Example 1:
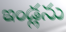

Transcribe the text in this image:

ఇండ్లను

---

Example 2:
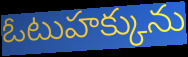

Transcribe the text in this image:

ఓటుహక్కును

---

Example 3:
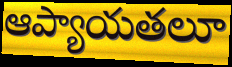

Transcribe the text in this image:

ఆప్యాయతలూ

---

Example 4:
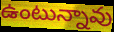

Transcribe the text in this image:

ఉంటున్నావు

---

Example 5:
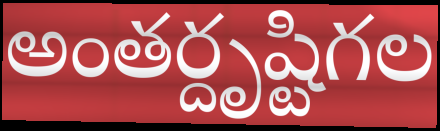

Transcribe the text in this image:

అంతర్దృష్టిగల